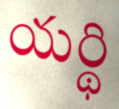
యర్థి